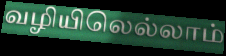
வழியிலெல்லாம்